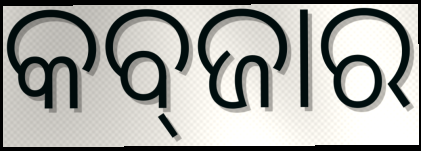
କବ୍‍ଜାର